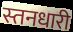
स्‍तनधारी